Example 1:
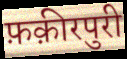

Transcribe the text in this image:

फ़क़ीरपुरी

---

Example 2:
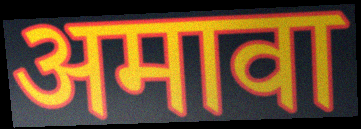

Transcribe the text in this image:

अमावा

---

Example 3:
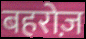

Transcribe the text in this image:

बहरोज़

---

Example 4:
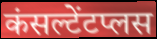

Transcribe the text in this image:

कंसल्टेंटप्लस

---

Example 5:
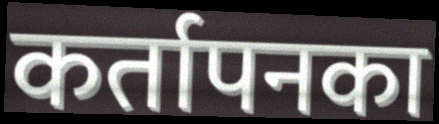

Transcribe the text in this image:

कर्तापनका